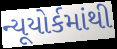
ન્યૂયોર્કમાંથી